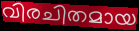
വിരചിതമായ